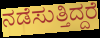
ನಡೆಸುತ್ತಿದ್ದರೆ